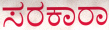
ಸರಕಾರಾ